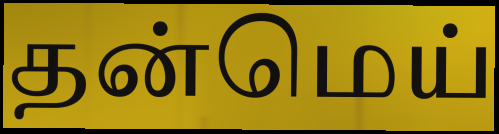
தன்மெய்